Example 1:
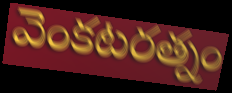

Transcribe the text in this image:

వెంకటరత్నం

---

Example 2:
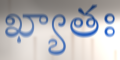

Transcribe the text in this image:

ఖ్యాతః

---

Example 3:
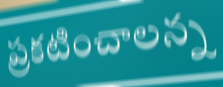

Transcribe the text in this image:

ప్రకటించాలన్న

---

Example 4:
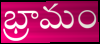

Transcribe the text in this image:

భ్రామం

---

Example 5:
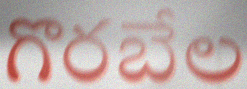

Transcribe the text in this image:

గొరబేల